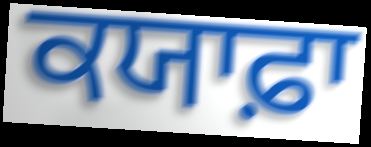
ਕਯਾਫ਼ਾ